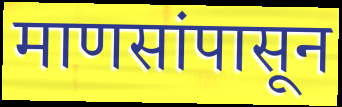
माणसांपासून